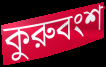
কুরুবংশ